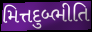
મિત્તદુબ્ભીતિ